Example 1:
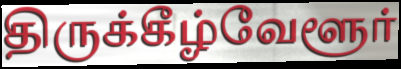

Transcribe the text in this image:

திருக்கீழ்வேளூர்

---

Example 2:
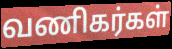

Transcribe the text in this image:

வணிகர்கள்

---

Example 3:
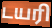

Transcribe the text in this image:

டயரி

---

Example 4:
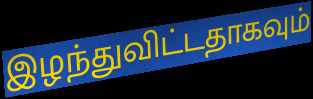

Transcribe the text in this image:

இழந்துவிட்டதாகவும்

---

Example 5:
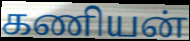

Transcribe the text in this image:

கணியன்